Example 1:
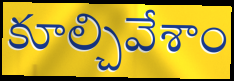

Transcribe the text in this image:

కూల్చివేశాం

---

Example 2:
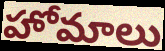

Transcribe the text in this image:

హోమాలు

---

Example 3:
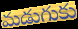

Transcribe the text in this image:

మడుగుకు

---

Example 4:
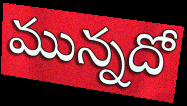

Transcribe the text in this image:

మున్నదో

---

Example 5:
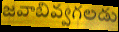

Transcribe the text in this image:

జవాబివ్వగలడు